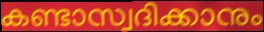
കണ്ടാസ്വദിക്കാനും